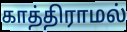
காத்திராமல்